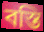
বস্তি